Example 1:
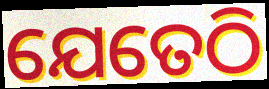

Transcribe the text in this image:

ଯେତେଠି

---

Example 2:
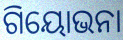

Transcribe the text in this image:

ଗିୟୋଭନା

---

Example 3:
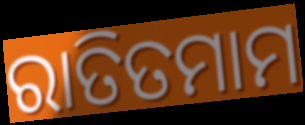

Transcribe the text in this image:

ରାତିତମାମ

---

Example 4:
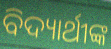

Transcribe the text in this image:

ବିଦ୍ୟାର୍ଥୀଙ୍କ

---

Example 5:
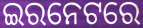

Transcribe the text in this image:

ଇରନେଟରେ